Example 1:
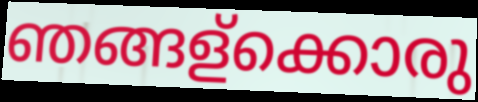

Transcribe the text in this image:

ഞങ്ങള്ക്കൊരു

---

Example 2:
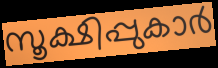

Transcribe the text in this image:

സൂക്ഷിപ്പുകാർ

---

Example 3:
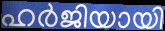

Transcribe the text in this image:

ഹർജിയായി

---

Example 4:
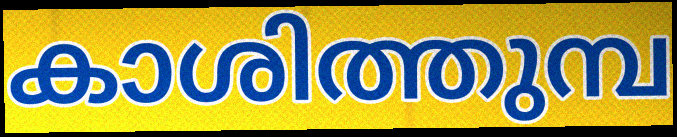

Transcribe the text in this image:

കാശിത്തുമ്പ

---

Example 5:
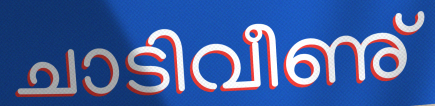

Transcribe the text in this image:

ചാടിവീണു്